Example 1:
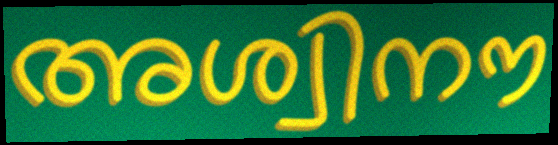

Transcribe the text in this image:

അശ്വിനൗ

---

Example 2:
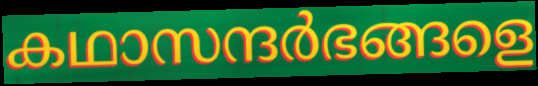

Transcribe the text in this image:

കഥാസന്ദർഭങ്ങളെ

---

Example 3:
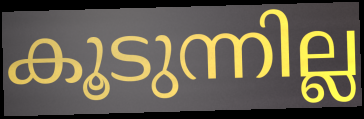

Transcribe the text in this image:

കൂടുന്നില്ല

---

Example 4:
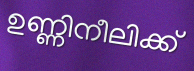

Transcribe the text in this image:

ഉണ്ണിനീലിക്ക്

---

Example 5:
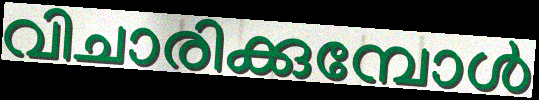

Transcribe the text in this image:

വിചാരിക്കുമ്പോൾ